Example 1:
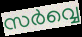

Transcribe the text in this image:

സർവ്വെ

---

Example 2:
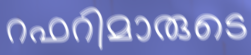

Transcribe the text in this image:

റഫറിമാരുടെ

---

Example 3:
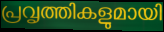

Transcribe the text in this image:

പ്രവൃത്തികളുമായി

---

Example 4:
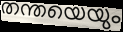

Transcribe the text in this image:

തന്തയെയും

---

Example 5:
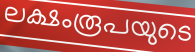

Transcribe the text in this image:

ലക്ഷംരൂപയുടെ